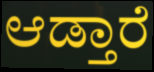
ಆಡ್ತಾರೆ